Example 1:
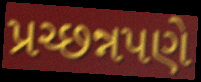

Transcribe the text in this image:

પ્રચ્છન્નપણે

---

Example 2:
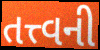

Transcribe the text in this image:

તત્ત્વની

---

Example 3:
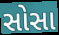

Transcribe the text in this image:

સોસા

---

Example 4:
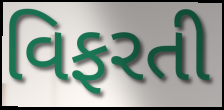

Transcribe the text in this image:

વિફરતી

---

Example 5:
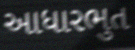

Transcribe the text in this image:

આધારભુત